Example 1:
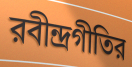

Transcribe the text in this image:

রবীন্দ্রগীতির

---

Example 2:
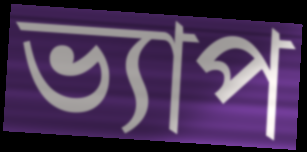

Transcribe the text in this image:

ভ্যাপ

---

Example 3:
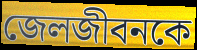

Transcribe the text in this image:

জেলজীবনকে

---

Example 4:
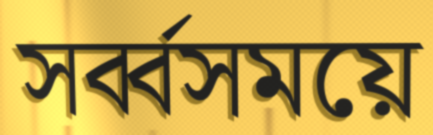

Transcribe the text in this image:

সর্ব্বসময়ে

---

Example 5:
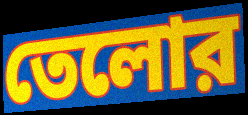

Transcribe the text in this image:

তেলোর